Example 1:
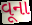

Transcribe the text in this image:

વૂના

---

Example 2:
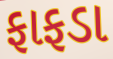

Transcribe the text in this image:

ફાફડા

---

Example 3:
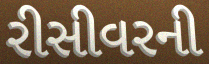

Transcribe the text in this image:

રીસીવરની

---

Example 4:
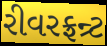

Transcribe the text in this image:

રીવરફ્રન્ર્ટ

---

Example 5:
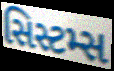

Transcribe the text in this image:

સિસ્ટમ્સ